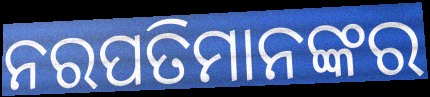
ନରପତିମାନଙ୍କର